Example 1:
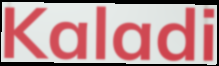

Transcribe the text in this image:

Kaladi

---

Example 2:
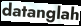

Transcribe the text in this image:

datanglah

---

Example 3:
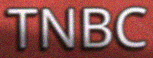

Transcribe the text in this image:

TNBC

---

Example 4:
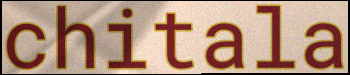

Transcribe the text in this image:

chitala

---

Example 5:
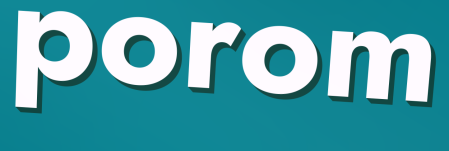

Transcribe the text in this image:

porom